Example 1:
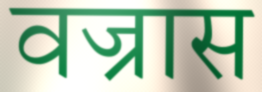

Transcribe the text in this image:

वज्रास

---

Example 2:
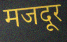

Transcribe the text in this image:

मजदूर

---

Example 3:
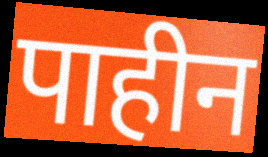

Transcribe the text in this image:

पाहीन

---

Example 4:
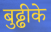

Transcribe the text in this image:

बुढ्ढीके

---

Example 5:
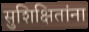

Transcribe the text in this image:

सुशिक्षितांना